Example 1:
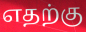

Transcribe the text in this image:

எதற்கு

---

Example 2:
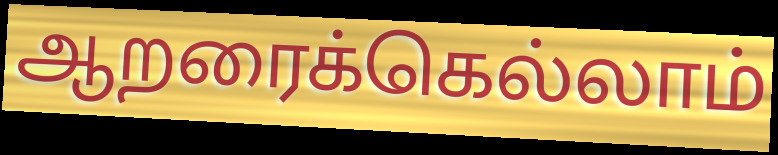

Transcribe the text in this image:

ஆறரைக்கெல்லாம்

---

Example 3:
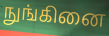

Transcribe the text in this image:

நுங்கினை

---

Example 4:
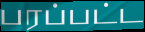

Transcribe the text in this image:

பரப்பட்ட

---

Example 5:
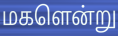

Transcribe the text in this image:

மகளென்று